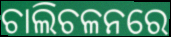
ଚାଲିଚଳନରେ